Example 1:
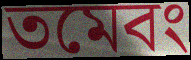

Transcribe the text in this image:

তমেবং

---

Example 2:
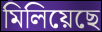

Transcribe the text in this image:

মিলিয়েছে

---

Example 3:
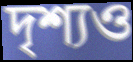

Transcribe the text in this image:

দৃশ্যও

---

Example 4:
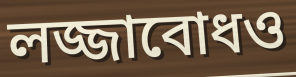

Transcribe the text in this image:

লজ্জাবোধও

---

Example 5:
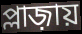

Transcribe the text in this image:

প্লাজ়ায়